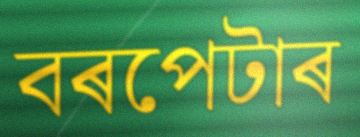
বৰপেটাৰ